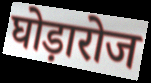
घोड़ारोज